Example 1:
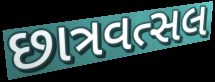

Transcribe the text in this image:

છાત્રવત્સલ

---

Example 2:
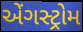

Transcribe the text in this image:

એંગસ્ટ્રોમ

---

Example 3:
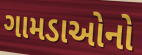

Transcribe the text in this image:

ગામડાઓનો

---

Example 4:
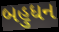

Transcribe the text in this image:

બહુધન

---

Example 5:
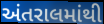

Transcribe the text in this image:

અંતરાલમાંથી